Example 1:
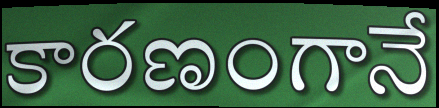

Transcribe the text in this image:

కారణంగానే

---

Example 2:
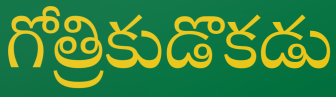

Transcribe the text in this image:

గోత్రికుడొకడు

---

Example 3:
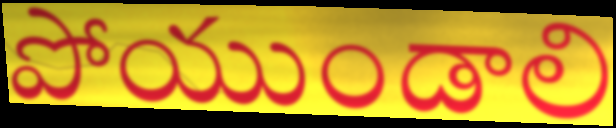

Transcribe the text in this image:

పోయుండాలి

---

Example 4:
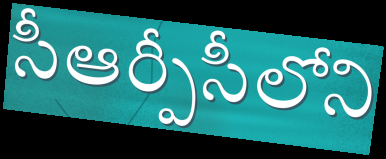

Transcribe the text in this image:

సీఆర్పీసీలోని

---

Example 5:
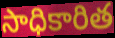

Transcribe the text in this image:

సాధికారిత